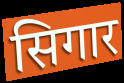
सिगार